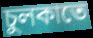
চুলকাতে